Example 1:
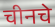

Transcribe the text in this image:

चीनचे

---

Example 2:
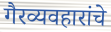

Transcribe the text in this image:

गैरव्यवहारांचे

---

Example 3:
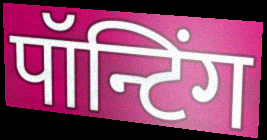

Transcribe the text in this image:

पॉन्टिंग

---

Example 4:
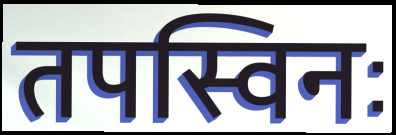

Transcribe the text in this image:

तपस्विनः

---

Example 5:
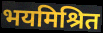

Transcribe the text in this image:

भयमिश्रित